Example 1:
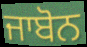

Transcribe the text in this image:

ਜਾਬੋਨ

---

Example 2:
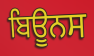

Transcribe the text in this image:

ਬਿਊਨਸ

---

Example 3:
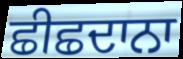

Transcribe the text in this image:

ਛੀਛਦਾਨਾ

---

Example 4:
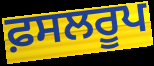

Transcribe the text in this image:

ਫ਼ਸਲਰੂਪ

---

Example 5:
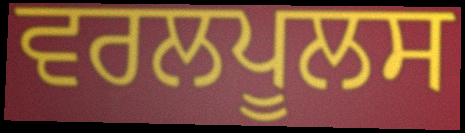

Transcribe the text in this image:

ਵਰਲਪੂਲਸ